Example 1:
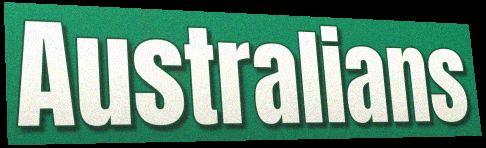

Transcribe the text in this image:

Australians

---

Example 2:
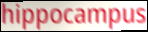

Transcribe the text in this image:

hippocampus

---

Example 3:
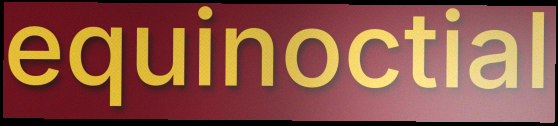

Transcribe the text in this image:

equinoctial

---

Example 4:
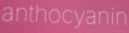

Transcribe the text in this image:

anthocyanin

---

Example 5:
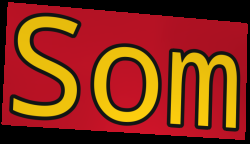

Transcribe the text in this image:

Som